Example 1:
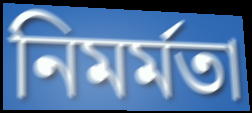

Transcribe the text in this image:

নিমর্মতা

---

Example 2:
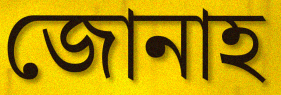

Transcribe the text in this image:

জোনাহ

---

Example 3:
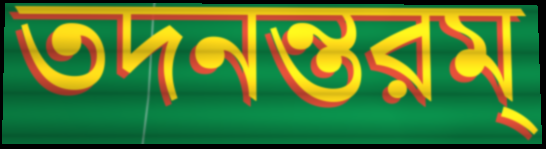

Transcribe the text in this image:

তদনন্তরম্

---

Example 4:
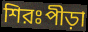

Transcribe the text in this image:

শিরঃপীড়া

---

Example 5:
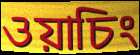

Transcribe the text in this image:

ওয়াচিং